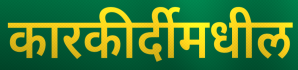
कारकीर्दीमधील